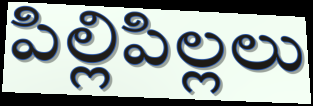
పిల్లిపిల్లలు